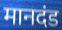
मानदंड